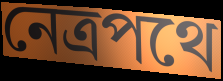
নেত্রপথে